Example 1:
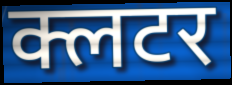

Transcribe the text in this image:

क्लटर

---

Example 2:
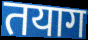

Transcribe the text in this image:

तयाग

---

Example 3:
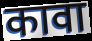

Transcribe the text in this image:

कावा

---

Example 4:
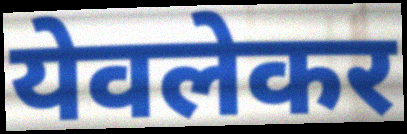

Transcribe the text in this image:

येवलेकर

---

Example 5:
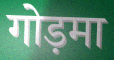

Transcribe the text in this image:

गोड़मा